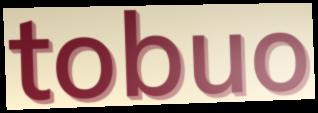
tobuo